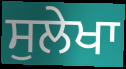
ਸੁਲੇਖਾ